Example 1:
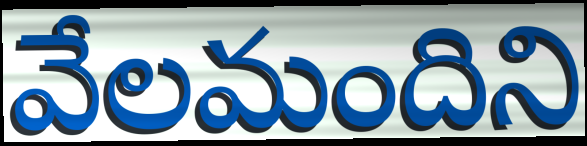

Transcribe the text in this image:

వేలమందిని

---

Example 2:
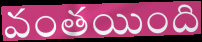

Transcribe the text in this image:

వంతయింది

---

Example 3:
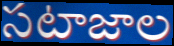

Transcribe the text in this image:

సటాజాల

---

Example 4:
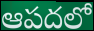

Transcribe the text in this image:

ఆపదలో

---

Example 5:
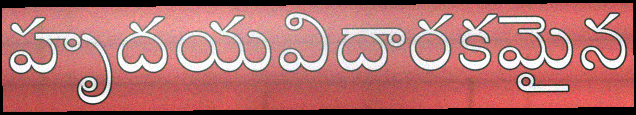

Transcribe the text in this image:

హృదయవిదారకమైన